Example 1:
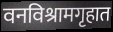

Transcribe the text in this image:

वनविश्रामगृहात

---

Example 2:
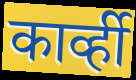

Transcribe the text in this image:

कार्व्ही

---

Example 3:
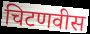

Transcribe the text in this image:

चिटणवीस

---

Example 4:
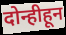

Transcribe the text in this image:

दोन्हीहून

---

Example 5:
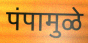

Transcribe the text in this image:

पंपामुळे